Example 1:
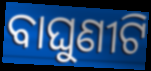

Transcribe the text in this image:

ବାଘୁଣୀଟି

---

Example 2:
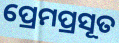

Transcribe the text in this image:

ପ୍ରେମପ୍ରସୂତ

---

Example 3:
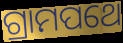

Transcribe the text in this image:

ଗ୍ରାମପଥେ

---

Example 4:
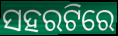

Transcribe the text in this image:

ସହରଟିରେ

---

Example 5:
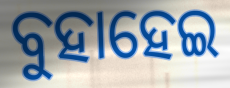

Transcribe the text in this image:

ବୁହାହେଇ